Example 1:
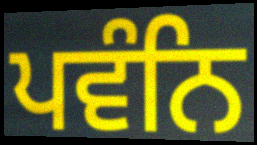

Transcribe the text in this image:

ਪਵੰਨਿ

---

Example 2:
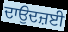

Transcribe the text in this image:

ਦਾਉਦਜ਼ਈ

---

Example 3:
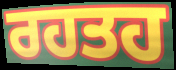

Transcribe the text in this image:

ਰਹਤਹ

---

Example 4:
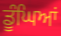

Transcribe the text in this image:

ਡੂੰਘਿਆਂ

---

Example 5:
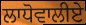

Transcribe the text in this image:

ਲਾਧੋਵਾਲੀਏ